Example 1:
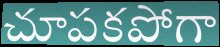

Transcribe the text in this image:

చూపకపోగా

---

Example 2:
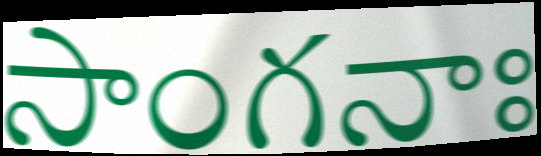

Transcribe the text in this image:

సాంగనాః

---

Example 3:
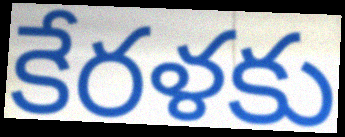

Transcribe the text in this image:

కేరళకు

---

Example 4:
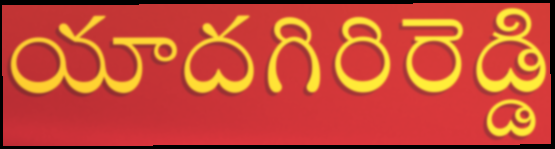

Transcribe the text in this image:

యాదగిరిరెడ్డి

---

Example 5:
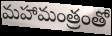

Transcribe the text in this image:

మహామంత్రంతో